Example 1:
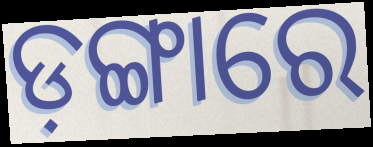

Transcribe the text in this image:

ଡ଼ଙ୍ଗାରେ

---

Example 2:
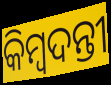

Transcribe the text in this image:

କିମ୍ଵଦନ୍ତୀ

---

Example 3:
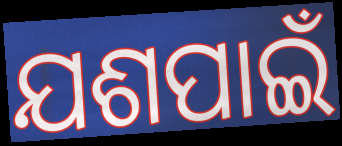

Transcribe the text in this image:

ଯଶପାଇଁ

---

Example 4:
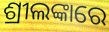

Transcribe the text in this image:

ଶ୍ରୀଲଙ୍କାରେ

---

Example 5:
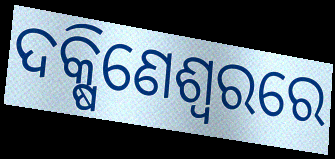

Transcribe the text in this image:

ଦକ୍ଷିଣେଶ୍ୱରରେ